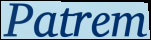
Patrem